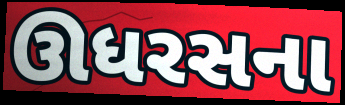
ઊધરસના